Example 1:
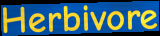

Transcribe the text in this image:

Herbivore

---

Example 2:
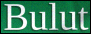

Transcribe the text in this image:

Bulut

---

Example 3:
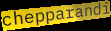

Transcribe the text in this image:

chepparandi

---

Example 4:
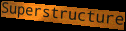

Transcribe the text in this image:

Superstructure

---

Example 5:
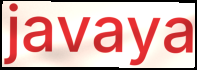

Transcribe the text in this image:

javaya